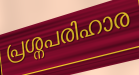
പ്രശ്നപരിഹാര